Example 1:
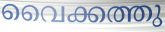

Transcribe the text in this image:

വൈക്കത്തു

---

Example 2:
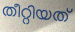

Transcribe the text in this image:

തീറ്റിയത്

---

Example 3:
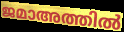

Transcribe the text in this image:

ജമാഅത്തിൽ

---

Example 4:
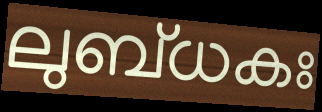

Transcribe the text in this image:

ലുബ്ധകഃ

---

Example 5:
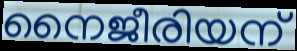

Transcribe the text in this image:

നൈജീരിയന്